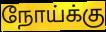
நோய்க்கு